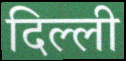
दिल्‍ली